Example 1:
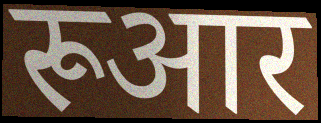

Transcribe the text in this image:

रूआर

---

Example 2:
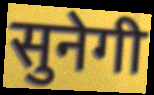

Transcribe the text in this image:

सुनेगी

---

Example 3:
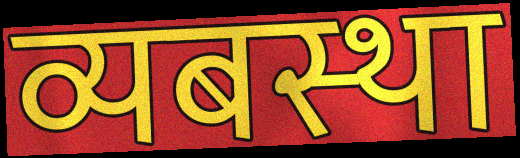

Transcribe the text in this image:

व्यबस्था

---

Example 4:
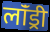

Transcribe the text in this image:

लॉंड्री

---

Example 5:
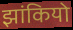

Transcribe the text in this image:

झांकियो